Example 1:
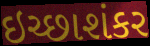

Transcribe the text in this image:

ઇચ્છાશંકર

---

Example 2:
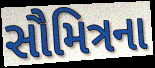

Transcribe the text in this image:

સૌમિત્રના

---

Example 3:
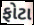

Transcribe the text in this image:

ફોટા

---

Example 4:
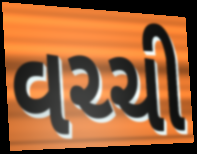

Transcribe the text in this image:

વચ્ચી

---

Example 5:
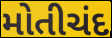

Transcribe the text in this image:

મોતીચંદ